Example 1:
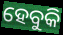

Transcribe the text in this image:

ହେବୁକି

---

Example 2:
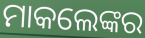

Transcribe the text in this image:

ମାକଲେଙ୍କର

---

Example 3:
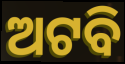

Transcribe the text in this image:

ଅଟବି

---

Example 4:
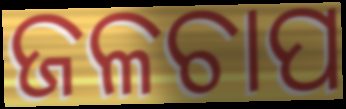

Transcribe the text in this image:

ଜଳଚାପ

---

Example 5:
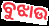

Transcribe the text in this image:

ବୁଝାଉ